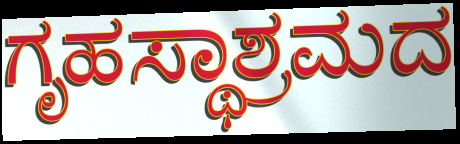
ಗೃಹಸ್ಥಾಶ್ರಮದ